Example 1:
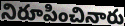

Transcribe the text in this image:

నిరూపించినారు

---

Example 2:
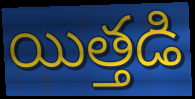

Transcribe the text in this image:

యిత్తడి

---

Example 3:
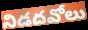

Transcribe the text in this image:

నిడదవోలు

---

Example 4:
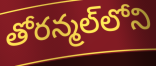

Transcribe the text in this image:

తోరన్మల్‌లోని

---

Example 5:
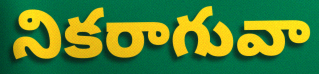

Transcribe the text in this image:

నికరాగువా